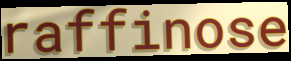
raffinose